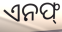
ଏନଫ୍